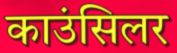
काउंसिलर